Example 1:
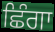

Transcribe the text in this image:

ਛਿੰਗਾ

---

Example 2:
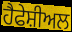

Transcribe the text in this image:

ਹੈਫੇਸ਼ੀਅਲ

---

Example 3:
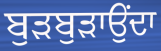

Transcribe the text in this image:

ਬੁੜਬੁੜਾਉਂਦਾ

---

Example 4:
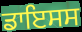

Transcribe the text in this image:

ਡਾਇਸਸ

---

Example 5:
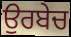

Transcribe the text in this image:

ਉਰਬੇਚ